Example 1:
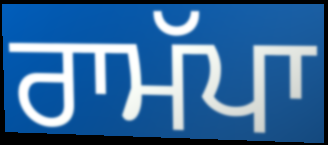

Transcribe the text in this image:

ਰਾਮੱਪਾ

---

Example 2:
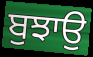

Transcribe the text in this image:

ਬੁਝਾਉ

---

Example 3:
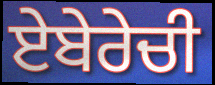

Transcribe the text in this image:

ਏਬੇਰੇਚੀ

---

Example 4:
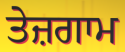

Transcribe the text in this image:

ਤੇਜ਼ਗਾਮ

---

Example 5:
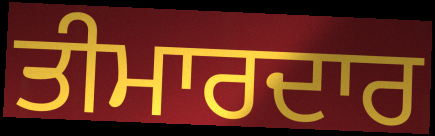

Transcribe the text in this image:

ਤੀਮਾਰਦਾਰ